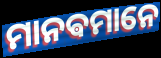
ମାନଵମାନେ